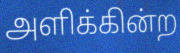
அளிக்கின்ற